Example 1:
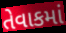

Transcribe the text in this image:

તેવાકમાં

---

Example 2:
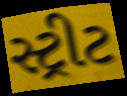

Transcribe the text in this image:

સ્ટ્રીટ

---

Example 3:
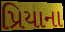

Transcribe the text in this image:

પ્રિયાના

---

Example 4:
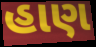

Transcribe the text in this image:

હાણ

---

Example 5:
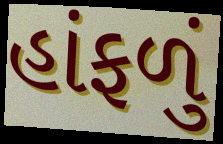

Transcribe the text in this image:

હાંફળું